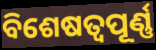
ବିଶେଷତ୍ୱପୂର୍ଣ୍ଣ